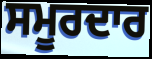
ਸਮੂਰਦਾਰ